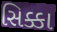
સિક્કા